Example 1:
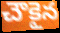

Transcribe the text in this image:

చౌకైన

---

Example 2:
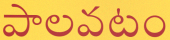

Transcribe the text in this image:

పాలవటం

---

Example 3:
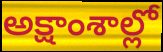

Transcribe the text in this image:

అక్షాంశాల్లో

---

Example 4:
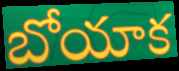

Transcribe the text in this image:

బోయాక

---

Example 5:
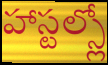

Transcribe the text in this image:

హాస్టల్స్లో